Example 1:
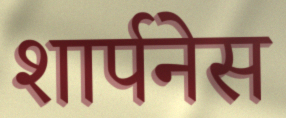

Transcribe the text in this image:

शार्पनेस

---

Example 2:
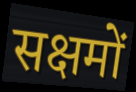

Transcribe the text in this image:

सक्षमों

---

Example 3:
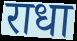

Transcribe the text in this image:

राधा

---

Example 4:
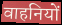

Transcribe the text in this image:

वाहनियों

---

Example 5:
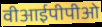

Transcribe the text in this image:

वीआईपीपीओ